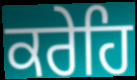
ਕਰੇਹਿ